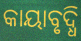
କାୟାବୃଦ୍ଧି